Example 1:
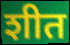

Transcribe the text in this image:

शीत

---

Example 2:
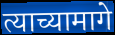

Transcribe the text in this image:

त्याच्यामागे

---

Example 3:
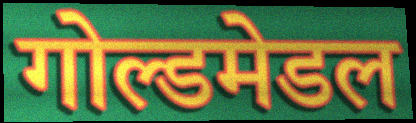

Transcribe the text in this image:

गोल्डमेडल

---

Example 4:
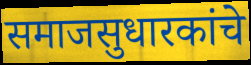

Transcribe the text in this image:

समाजसुधारकांचे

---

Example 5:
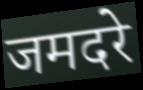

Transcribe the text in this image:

जमदरे